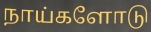
நாய்களோடு